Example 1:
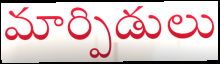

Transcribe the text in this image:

మార్పిడులు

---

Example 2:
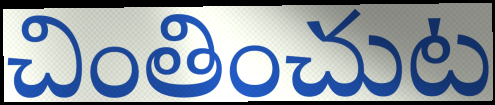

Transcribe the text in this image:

చింతించుట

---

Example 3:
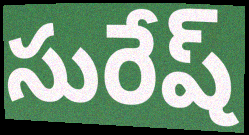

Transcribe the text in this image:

సురేష్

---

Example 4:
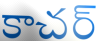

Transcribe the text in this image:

కాచర్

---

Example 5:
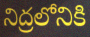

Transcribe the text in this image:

నిద్రలోనికి